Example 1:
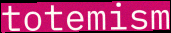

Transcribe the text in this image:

totemism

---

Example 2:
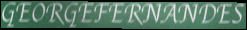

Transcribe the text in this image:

GEORGEFERNANDES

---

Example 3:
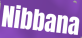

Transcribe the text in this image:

Nibbana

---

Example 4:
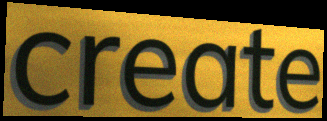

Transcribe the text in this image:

create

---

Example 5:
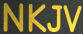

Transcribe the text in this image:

NKJV